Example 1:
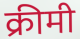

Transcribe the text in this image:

क्रीमी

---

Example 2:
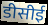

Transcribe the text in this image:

डीसीई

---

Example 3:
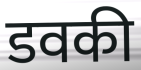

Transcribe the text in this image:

डवकी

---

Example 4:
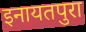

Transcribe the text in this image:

इनायतपुरा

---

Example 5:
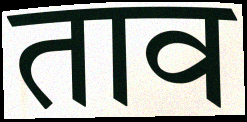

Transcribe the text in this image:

ताव